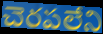
చెరపలేని